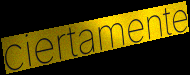
ciertamente